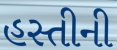
હસ્તીની